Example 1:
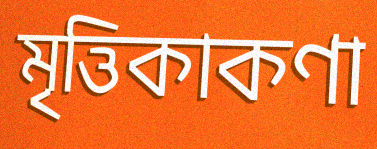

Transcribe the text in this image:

মৃত্তিকাকণা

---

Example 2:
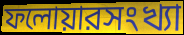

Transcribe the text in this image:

ফলোয়ারসংখ্যা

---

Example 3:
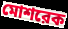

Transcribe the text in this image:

মোশরেক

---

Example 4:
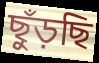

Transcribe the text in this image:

ছুঁড়ছি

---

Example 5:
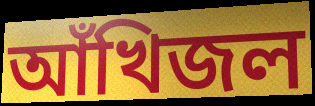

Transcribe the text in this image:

আঁখিজল